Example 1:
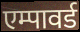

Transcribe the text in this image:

एम्पावर्ड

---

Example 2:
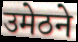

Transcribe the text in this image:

उमेठने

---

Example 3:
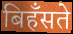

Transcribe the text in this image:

बिहँसते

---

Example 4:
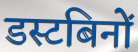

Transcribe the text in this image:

डस्टबिनों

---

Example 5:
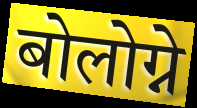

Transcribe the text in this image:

बोलोग्ने